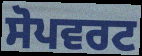
ਸੋਪਵਰਟ